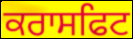
ਕਰਾਸਫਿਟ